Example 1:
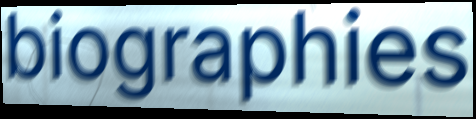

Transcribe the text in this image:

biographies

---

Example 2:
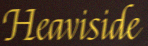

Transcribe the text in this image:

Heaviside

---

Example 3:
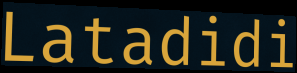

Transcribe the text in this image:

Latadidi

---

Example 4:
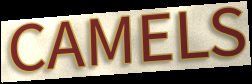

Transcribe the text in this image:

CAMELS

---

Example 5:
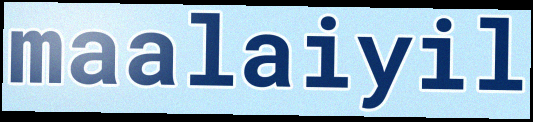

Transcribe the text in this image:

maalaiyil